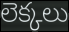
లెక్కలు